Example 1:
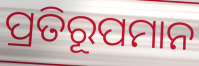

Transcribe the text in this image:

ପ୍ରତିରୂପମାନ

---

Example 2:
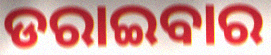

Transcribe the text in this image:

ଡରାଇବାର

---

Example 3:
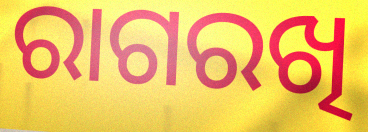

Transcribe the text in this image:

ରାଗରଖି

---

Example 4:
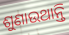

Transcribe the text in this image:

ଶୁଣାଉଥାନ୍ତି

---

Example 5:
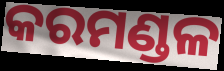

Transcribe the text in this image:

କରମଣ୍ଡଳ